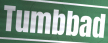
Tumbbad